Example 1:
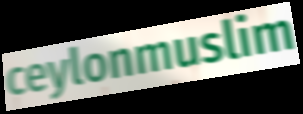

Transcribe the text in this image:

ceylonmuslim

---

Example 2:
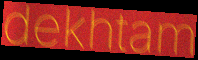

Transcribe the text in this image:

dekhtam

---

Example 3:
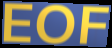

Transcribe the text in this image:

EOF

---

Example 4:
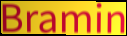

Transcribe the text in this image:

Bramin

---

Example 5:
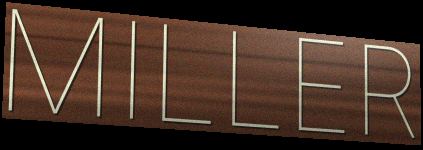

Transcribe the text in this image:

MILLER